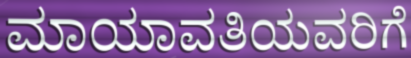
ಮಾಯಾವತಿಯವರಿಗೆ